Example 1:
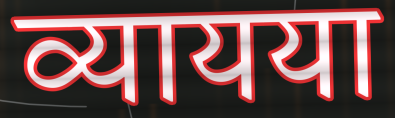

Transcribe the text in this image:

व्यायया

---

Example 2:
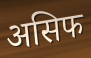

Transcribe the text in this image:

असिफ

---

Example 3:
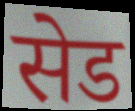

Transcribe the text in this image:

सेड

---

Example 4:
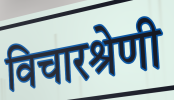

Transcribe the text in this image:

विचारश्रेणी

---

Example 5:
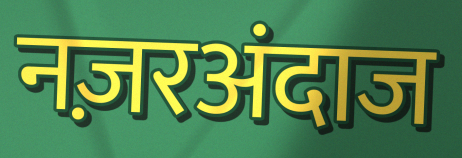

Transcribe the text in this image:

नज़रअंदाज